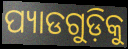
ପ୍ୟାଡଗୁଡ଼ିକୁ